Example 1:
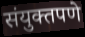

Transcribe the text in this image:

संयुक्तपणे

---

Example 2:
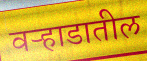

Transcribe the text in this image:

वऱ्हाडातील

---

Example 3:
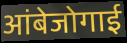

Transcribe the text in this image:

आंबेजोगाई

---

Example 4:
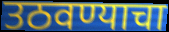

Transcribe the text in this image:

उठवण्याचा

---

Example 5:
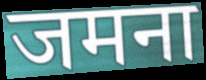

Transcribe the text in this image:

जमना